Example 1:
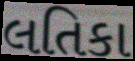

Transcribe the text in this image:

લતિકા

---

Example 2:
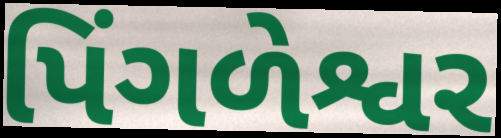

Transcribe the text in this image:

પિંગળેશ્વર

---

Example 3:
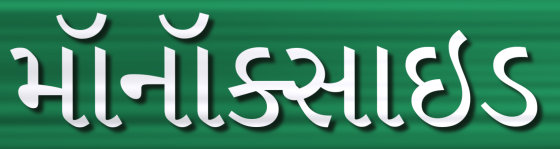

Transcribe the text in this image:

મૉનૉક્સાઇડ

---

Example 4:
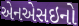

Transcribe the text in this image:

એનએસઇનો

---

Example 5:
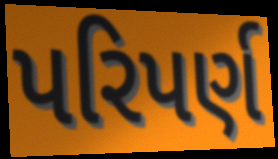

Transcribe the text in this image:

પરિપર્ણ